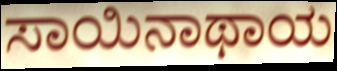
ಸಾಯಿನಾಥಾಯ